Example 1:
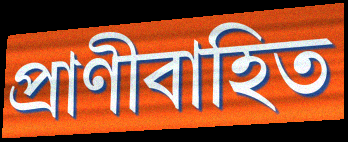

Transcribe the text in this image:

প্রাণীবাহিত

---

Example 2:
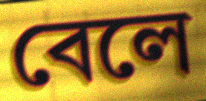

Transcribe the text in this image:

বেলে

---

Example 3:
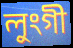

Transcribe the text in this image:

লুংগী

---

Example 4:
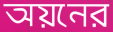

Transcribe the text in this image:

অয়নের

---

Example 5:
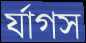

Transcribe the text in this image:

র্যাগস